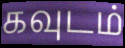
கவுடம்